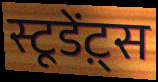
स्टूडेंट़्स